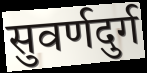
सुवर्णदुर्ग